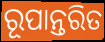
ରୂପାନ୍ତରିତ